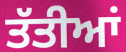
ਤੱਤੀਆਂ